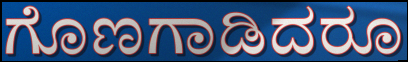
ಗೊಣಗಾಡಿದರೂ